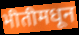
भीतीमधून